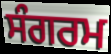
ਸੰਗਰਮ